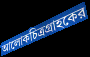
আলোকচিত্রগ্রাহকের